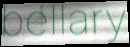
bellary